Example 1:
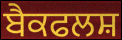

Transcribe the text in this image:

ਬੈਕਫਲਸ਼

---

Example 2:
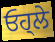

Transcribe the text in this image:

ਓਹ੍ਲੇ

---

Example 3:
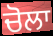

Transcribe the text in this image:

ਚੋਲਾ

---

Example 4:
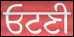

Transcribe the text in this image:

ਓਟਣੀ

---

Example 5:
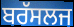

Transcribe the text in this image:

ਬਰੱਸਲਜ